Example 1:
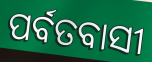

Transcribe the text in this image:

ପର୍ବତବାସୀ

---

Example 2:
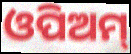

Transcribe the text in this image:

ଓପିଅମ୍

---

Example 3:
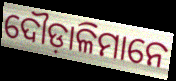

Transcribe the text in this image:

ଦୌଡ଼ାଳିମାନେ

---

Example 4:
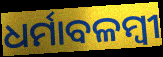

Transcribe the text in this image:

ଧର୍ମାବଳମ୍ବୀ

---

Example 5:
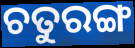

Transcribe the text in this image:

ଚତୁରଙ୍ଗ